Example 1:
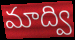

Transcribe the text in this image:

మాద్వి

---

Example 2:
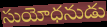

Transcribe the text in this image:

సుయోధనుడు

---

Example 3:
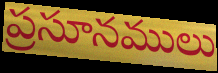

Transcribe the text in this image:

ప్రసూనములు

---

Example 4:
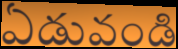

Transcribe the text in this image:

ఏడువండి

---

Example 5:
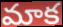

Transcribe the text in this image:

మాక